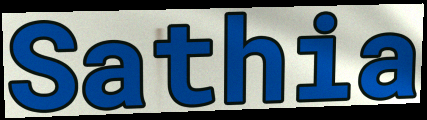
Sathia